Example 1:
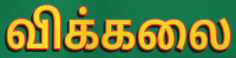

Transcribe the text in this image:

விக்கலை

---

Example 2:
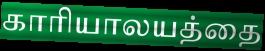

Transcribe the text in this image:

காரியாலயத்தை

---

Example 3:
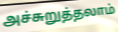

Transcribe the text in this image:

அச்சுறுத்தலாம்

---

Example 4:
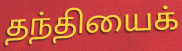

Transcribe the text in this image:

தந்தியைக்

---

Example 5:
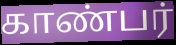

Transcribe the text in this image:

காண்பர்